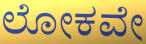
ಲೋಕವೇ